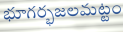
భూగర్భజలమట్టం